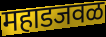
महाडजवळ